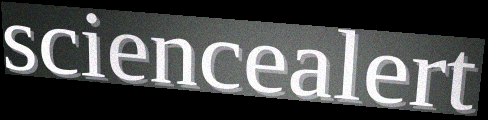
sciencealert